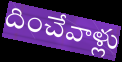
దించేవాళ్లు